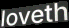
loveth